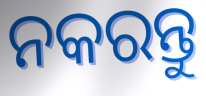
ନକରନ୍ତୁ